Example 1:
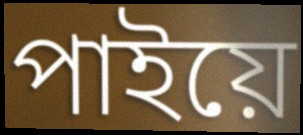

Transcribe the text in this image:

পাইয়ে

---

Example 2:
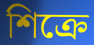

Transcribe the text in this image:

শিক্রে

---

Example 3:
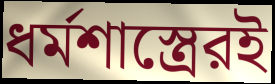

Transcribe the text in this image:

ধর্মশাস্ত্রেরই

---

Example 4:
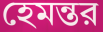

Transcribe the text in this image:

হেমন্তর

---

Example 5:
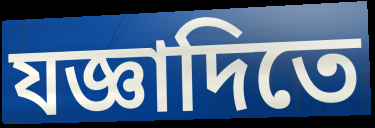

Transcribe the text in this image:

যজ্ঞাদিতে